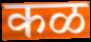
कळ